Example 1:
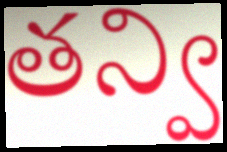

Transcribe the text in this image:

తన్వి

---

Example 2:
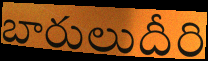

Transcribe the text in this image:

బారులుదీరి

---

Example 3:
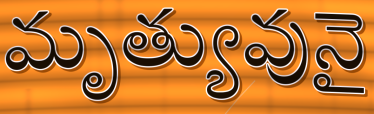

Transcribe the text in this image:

మృత్యువునై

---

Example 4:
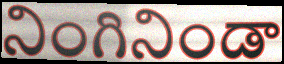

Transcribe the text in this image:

నింగినిండా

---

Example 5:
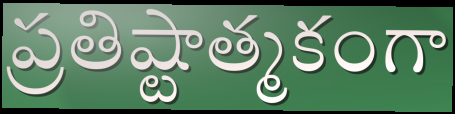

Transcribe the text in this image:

ప్రతిష్టాత్మకంగా